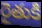
రైతుకి